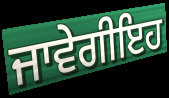
ਜਾਵੇਗੀਇਹ